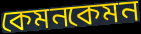
কেমনকেমন